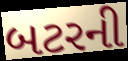
બટરની